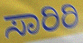
ಸಾರಿರಿ